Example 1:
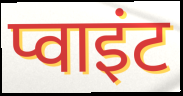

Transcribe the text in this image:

प्‍वाइंट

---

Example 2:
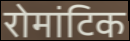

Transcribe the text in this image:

रोमांटिक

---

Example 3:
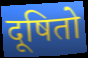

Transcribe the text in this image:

दूषितो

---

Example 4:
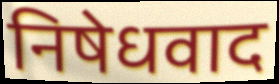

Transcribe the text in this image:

निषेधवाद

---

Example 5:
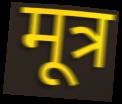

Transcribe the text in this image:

मूत्र